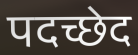
पदच्छेद